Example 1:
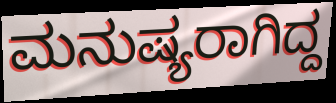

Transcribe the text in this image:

ಮನುಷ್ಯರಾಗಿದ್ದ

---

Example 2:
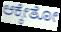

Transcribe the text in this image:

ಆಕ್ಕೇತೋ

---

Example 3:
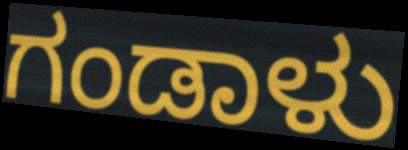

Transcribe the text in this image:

ಗಂಡಾಳು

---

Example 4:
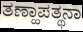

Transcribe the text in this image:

ತಣ್ಹಾಪತ್ಥನಾ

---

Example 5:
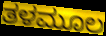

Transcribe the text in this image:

ತಳಮೂಲ